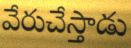
వేరుచేస్తాడు